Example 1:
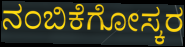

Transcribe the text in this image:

ನಂಬಿಕೆಗೋಸ್ಕರ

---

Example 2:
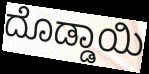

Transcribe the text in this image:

ದೊಡ್ಡಾಯಿ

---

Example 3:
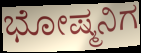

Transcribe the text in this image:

ಭೋಷ್ಮನಿಗ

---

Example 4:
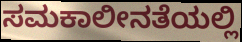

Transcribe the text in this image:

ಸಮಕಾಲೀನತೆಯಲ್ಲಿ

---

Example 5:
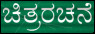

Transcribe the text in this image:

ಚಿತ್ರರಚನೆ